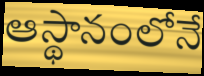
ఆస్థానంలోనే